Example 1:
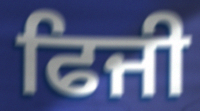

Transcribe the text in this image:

ਫਿਜੀ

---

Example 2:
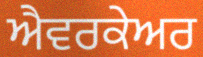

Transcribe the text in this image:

ਐਵਰਕੇਅਰ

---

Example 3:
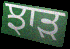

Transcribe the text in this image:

ਝਾੜ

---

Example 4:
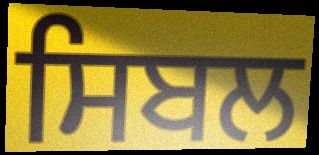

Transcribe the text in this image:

ਸਿਬਲ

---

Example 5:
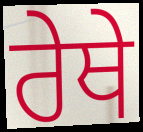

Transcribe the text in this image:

ਰੇਥੇ